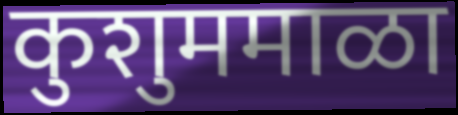
कुशुममाळा